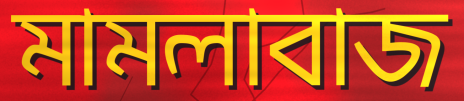
মামলাবাজ